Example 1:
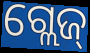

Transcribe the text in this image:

ଗ୍ଲେଜ୍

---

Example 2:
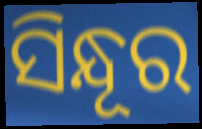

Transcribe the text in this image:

ସିନ୍ଧୂର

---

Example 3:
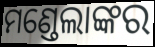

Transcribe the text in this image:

ମଣ୍ଡେଲାଙ୍କର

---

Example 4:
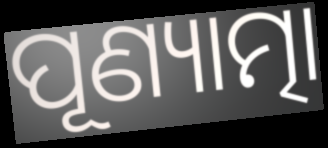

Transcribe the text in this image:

ପୂଣ୍ୟାତ୍ମା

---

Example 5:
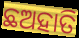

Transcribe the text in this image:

ଛଅହାତି